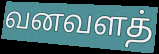
வனவளத்